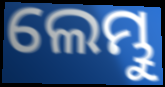
ଲେମ୍ଭୁ